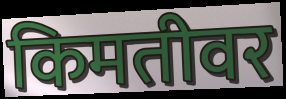
किमतीवर